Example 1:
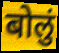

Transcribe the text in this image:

बोलुं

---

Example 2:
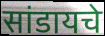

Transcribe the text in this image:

सांडायचे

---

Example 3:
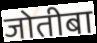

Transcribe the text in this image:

जोतीबा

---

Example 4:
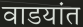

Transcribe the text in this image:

वाडयांत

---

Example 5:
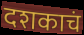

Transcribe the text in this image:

दशकाचं